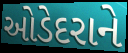
ઓડેદરાને